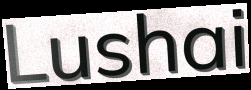
Lushai